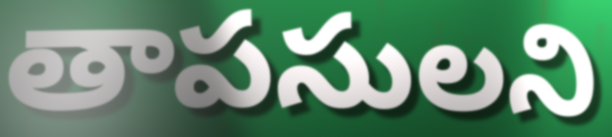
తాపసులని